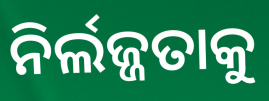
ନିର୍ଲଜ୍ଜତାକୁ